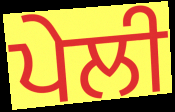
ਪੇਲੀ